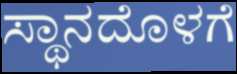
ಸ್ಥಾನದೊಳಗೆ